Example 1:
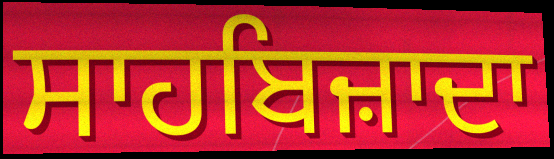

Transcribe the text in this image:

ਸਾਹਬਿਜ਼ਾਦਾ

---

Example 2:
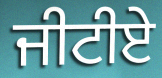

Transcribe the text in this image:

ਜੀਟੀਏ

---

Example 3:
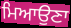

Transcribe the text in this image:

ਮਿਆਉਣਾ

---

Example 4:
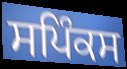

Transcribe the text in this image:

ਸਪਿੰਕਸ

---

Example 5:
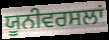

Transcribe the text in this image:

ਯੂਨੀਵਰਸਲਾਂ